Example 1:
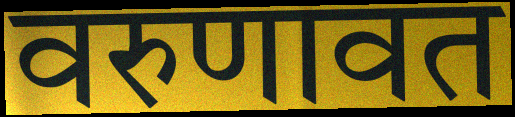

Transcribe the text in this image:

वरुणावत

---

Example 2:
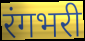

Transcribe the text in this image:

रंगभरी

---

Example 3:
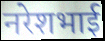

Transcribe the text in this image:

नरेशभाई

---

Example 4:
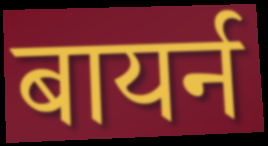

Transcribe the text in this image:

बायर्न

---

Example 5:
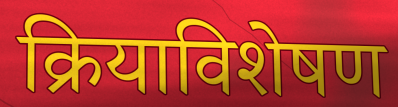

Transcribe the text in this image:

क्रियाविशेषण